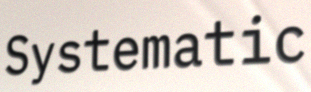
Systematic